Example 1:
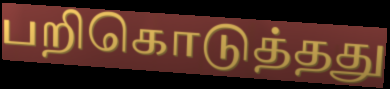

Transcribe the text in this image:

பறிகொடுத்தது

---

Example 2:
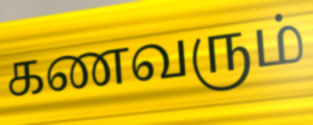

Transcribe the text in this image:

கணவரும்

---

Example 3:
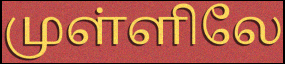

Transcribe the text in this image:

முள்ளிலே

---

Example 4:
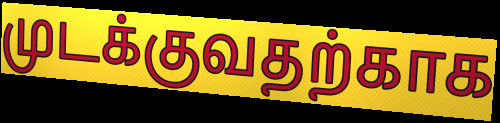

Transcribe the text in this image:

முடக்குவதற்காக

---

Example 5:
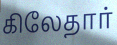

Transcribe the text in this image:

கிலேதார்